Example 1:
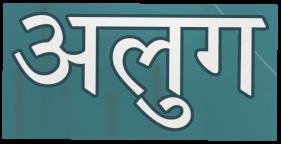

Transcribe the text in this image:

अलुग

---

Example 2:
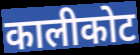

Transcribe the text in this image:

कालीकोट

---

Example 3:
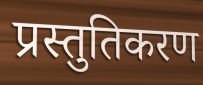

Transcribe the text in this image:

प्रस्तुतिकरण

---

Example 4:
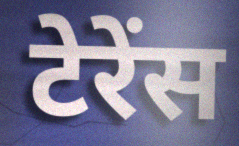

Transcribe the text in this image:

टेरेंस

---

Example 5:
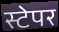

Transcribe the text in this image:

स्टेपर